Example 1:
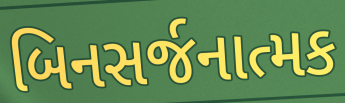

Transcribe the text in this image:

બિનસર્જનાત્મક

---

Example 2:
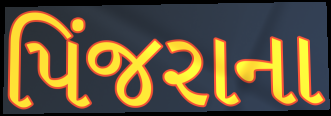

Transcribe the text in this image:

પિંજરાના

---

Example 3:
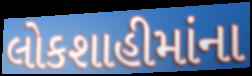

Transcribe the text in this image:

લોકશાહીમાંના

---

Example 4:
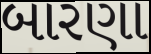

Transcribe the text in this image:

બારણા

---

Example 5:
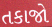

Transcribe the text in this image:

તકાજો